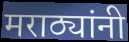
मराठ्यांनी